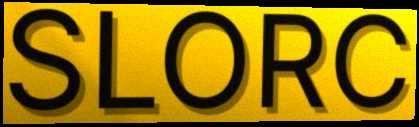
SLORC